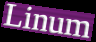
Linum